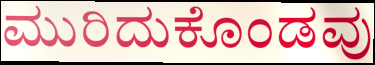
ಮುರಿದುಕೊಂಡವು